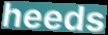
heeds